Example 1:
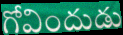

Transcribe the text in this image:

గోవిందుడు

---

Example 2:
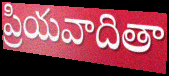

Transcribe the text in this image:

ప్రియవాదితా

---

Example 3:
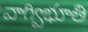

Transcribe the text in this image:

వాగ్విభూతి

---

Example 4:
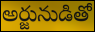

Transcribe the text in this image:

అర్జునుడితో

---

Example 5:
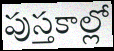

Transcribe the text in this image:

పుస్తకాల్లో